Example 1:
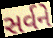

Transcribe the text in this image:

સર્વને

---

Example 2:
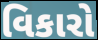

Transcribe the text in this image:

વિકારો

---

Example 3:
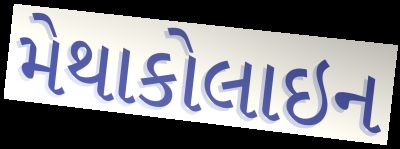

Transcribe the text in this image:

મેથાકોલાઇન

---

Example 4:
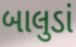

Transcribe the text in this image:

બાલુડાં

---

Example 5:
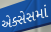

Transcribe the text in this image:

એક્સેસમાં